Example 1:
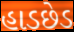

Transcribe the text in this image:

હાડછેડ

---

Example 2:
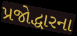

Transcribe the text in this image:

પ્રજોદ્ધારના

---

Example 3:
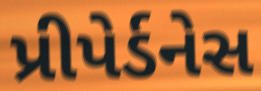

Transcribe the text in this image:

પ્રીપેર્ડનેસ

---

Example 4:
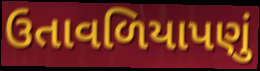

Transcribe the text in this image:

ઉતાવળિયાપણું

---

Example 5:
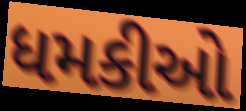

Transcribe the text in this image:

ધમકીઓ